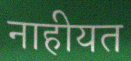
नाहीयत